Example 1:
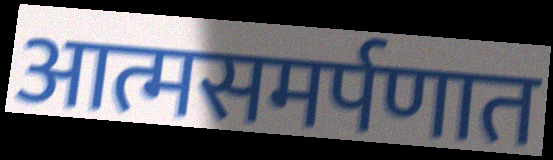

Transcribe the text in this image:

आत्मसमर्पणात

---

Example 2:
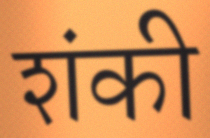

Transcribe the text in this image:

शंकी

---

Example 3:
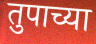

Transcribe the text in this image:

तुपाच्या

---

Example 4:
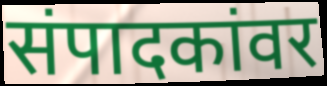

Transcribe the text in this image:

संपादकांवर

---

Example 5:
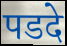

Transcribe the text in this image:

पडदे